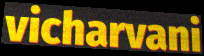
vicharvani